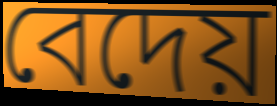
বেদেয়